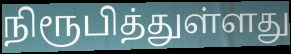
நிரூபித்துள்ளது